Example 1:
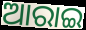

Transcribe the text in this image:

ଆରାଇ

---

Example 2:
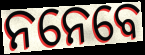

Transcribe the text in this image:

ନନେବେ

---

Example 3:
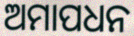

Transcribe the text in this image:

ଅମାପଧନ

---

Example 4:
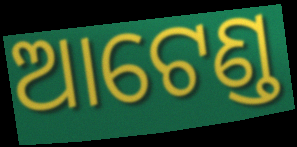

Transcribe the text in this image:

ଆଟେଣ୍ଡ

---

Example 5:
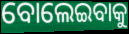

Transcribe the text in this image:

ବୋଲେଇବାକୁ